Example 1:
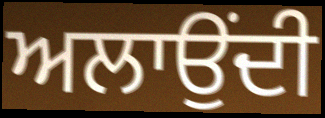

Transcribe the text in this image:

ਅਲਾਉਂਦੀ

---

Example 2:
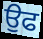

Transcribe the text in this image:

ਉਫ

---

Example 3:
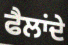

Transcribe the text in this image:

ਫੈਲਾਂਦੇ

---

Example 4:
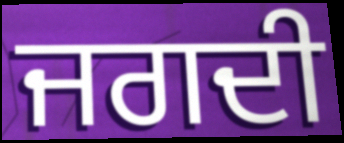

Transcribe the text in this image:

ਜਗਦੀ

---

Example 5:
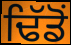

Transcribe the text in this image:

ਢਿੱਡੋਂ